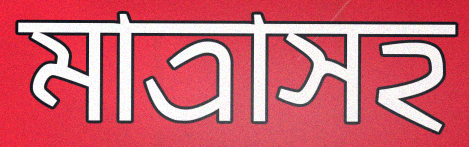
মাত্রাসহ